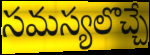
సమస్యలొచ్చే